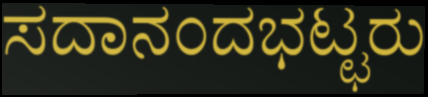
ಸದಾನಂದಭಟ್ಟರು